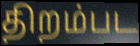
திறம்பட